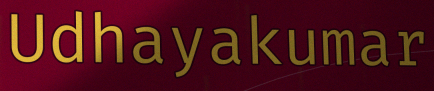
Udhayakumar